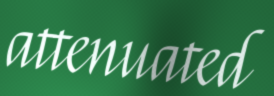
attenuated